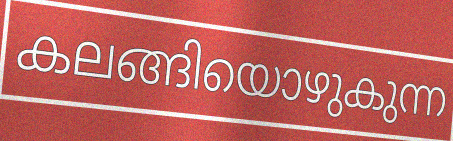
കലങ്ങിയൊഴുകുന്ന